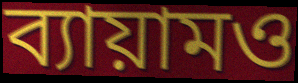
ব্যায়ামও